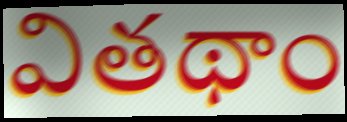
వితథాం